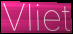
Vliet